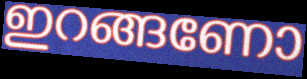
ഇറങ്ങണോ